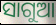
ସାଗୁଆ